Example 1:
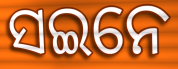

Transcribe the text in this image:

ସଇନେ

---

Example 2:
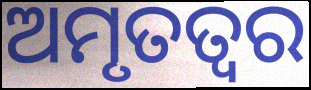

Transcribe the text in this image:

ଅମୃତତ୍ଵର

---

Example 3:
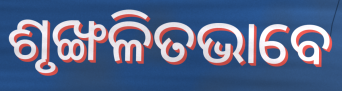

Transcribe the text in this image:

ଶୃଙ୍ଖଳିତଭାବେ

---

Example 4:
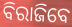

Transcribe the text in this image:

ବିରାଜିବେ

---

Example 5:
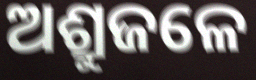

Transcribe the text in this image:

ଅଶ୍ରୁଜଳେ